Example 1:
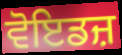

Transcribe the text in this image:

ਵੋਇਡਜ਼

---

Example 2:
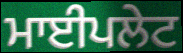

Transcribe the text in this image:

ਮਾਈਪਲੇਟ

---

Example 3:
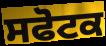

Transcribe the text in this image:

ਸਫੋਟਕ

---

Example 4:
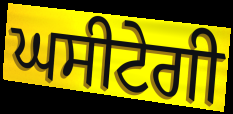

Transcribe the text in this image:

ਘਸੀਟੇਗੀ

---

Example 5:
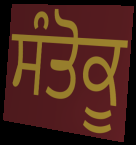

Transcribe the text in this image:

ਸੰਤੋਕੂ